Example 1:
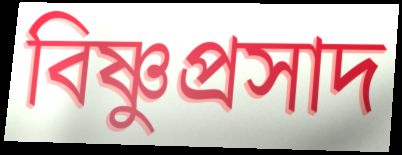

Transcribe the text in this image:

বিষ্ণুপ্ৰসাদ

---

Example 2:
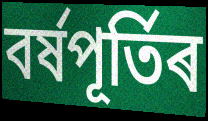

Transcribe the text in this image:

বৰ্ষপূৰ্তিৰ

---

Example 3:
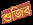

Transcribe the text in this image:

শুজিব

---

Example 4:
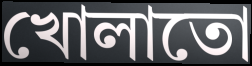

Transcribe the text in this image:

খোলাতো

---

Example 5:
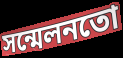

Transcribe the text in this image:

সন্মেলনতো